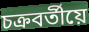
চক্ৰবৰ্তীয়ে